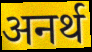
अनर्थ